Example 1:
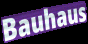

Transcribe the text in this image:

Bauhaus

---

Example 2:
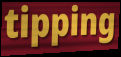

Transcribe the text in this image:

tipping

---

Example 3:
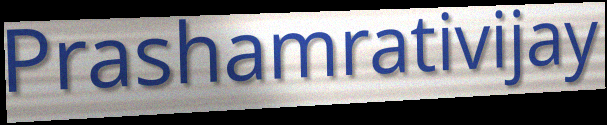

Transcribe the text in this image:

Prashamrativijay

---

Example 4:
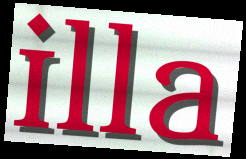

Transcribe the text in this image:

illa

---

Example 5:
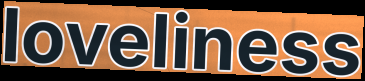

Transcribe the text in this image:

loveliness